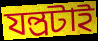
যন্ত্রটাই